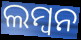
ଲମ୍ବନ